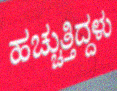
ಹಚ್ಚುತ್ತಿದ್ದಳು